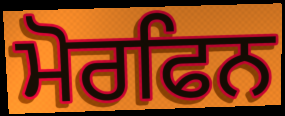
ਮੋਰਫਿਨ